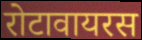
रोटावायरस